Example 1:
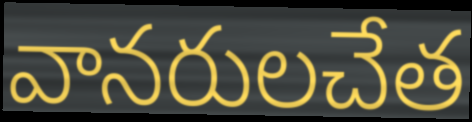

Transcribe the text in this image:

వానరులచేత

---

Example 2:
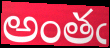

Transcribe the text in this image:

అంతఁ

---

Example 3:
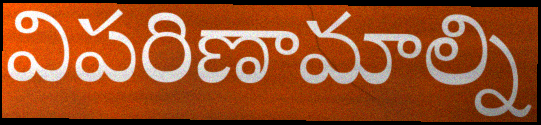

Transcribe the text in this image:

విపరిణామాల్ని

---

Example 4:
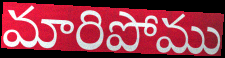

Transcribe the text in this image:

మారిపోము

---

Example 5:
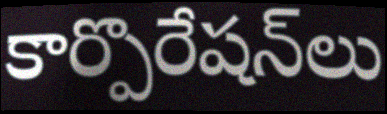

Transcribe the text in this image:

కార్పొరేషన్‌లు